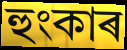
হুংকাৰ